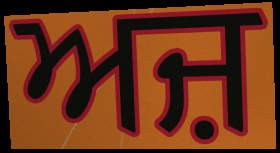
ਅਜ਼